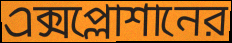
এক্সপ্লোশানের